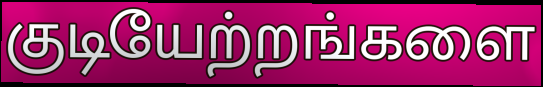
குடியேற்றங்களை